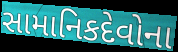
સામાનિકદેવોના